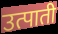
उत्पाती